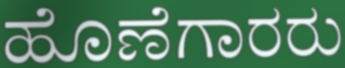
ಹೊಣೆಗಾರರು